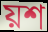
য়শ